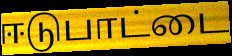
ஈடுபாட்டை